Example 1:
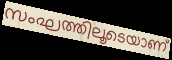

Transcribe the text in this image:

സംഘത്തിലൂടെയാണ്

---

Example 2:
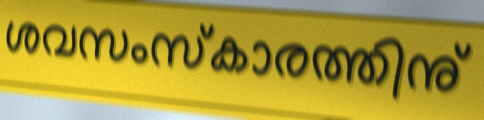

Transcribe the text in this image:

ശവസംസ്കാരത്തിനു്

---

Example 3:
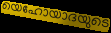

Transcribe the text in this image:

യെഹോയാദയുടെ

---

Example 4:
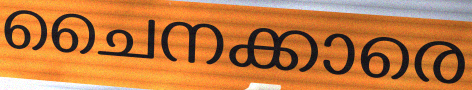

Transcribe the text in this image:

ചൈനക്കാരെ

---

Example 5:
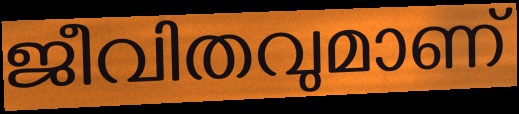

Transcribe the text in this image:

ജീവിതവുമാണ്